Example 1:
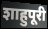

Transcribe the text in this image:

शाहुपूरी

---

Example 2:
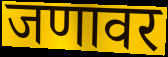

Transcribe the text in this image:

जणावर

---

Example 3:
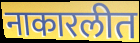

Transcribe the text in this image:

नाकारलीत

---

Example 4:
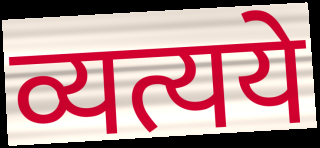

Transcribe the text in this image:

व्यत्यये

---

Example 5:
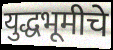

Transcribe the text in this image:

युद्धभूमीचे